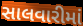
સાલવારીમાં